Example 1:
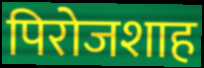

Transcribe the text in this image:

पिरोजशाह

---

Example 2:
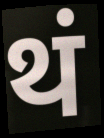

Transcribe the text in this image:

थं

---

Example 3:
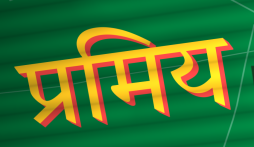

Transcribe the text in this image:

प्रमिय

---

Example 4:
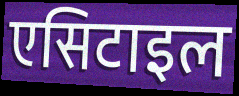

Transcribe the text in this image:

एसिटाइल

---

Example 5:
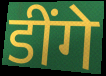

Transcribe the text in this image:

डींगे